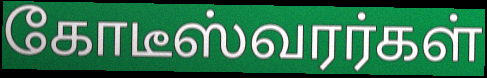
கோடீஸ்வரர்கள்